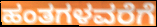
ಹಂತಗಳವರೆಗೆ